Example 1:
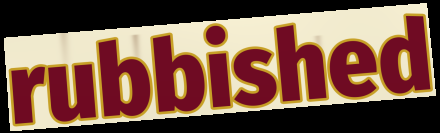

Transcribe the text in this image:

rubbished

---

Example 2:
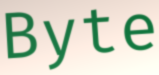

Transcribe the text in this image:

Byte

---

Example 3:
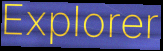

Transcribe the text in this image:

Explorer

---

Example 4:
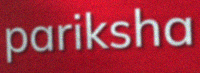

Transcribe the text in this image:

pariksha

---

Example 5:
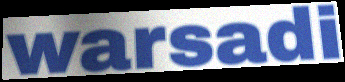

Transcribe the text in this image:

warsadi